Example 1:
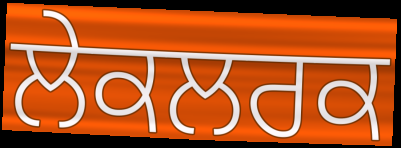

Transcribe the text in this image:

ਲੇਕਲਰਕ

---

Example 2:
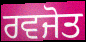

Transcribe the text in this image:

ਰਵਜੋਤ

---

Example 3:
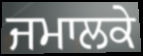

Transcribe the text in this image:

ਜਮਾਲਕੇ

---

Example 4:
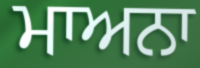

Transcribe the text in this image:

ਮਾਅਨਾ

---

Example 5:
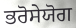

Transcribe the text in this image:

ਭਰੋਸੇਯੋਗ